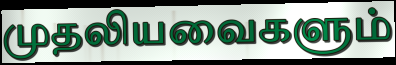
முதலியவைகளும்